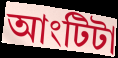
আংটিটা